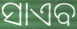
ସାଏବ